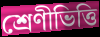
শ্রেণীভিত্তি